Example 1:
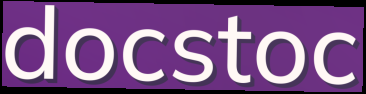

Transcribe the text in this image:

docstoc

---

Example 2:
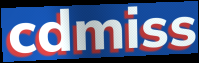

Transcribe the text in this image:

cdmiss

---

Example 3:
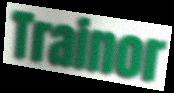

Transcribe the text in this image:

Trainor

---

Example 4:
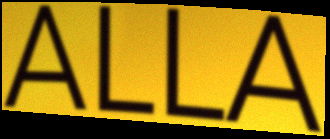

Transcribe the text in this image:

ALLA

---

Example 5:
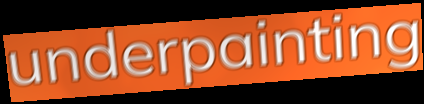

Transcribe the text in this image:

underpainting